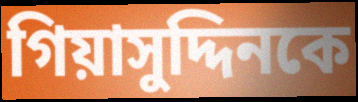
গিয়াসুদ্দিনকে